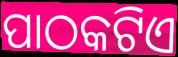
ପାଠକଟିଏ